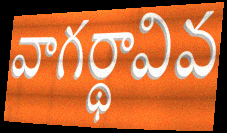
వాగర్థావివ